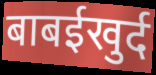
बाबईखुर्द